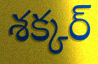
శక్కర్